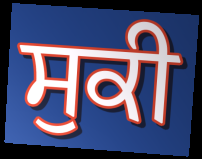
ਸੁਕੀ